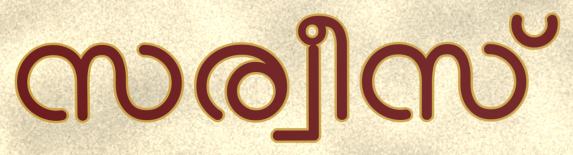
സര്വീസ്